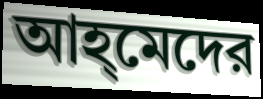
আহ্‌মেদের